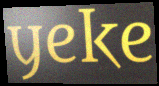
yeke